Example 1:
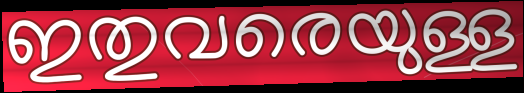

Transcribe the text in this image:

ഇതുവരെയുള്ള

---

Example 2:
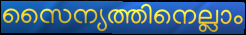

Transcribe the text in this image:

സൈന്യത്തിനെല്ലാം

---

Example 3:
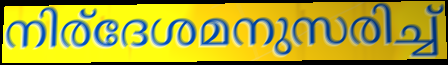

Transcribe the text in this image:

നിര്ദേശമനുസരിച്ച്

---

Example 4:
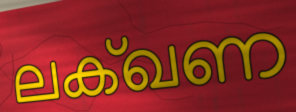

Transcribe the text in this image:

ലക്ഖണ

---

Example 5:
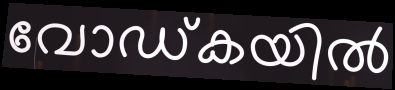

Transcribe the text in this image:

വോഡ്കയിൽ